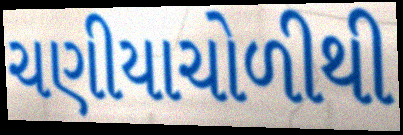
ચણીયાચોળીથી